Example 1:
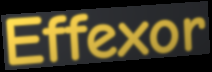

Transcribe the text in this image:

Effexor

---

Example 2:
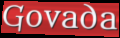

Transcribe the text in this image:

Govada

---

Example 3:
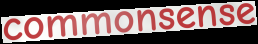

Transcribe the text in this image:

commonsense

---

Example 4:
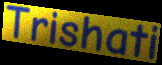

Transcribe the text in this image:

Trishati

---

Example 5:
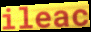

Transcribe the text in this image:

ileac